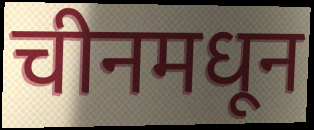
चीनमधून